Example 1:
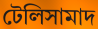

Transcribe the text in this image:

টেলিসামাদ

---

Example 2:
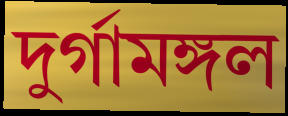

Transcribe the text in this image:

দুর্গামঙ্গল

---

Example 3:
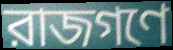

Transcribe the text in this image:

রাজগণে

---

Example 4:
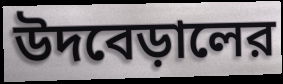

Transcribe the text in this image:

উদবেড়ালের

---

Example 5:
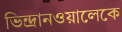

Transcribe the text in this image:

ভিন্দ্রানওয়ালেকে